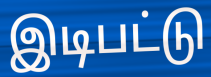
இடிபட்டு